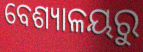
ବେଶ୍ୟାଳୟରୁ